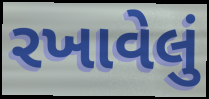
રખાવેલું